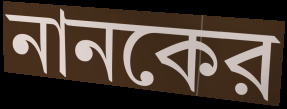
নানকের